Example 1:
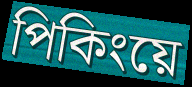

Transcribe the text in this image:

পিকিংয়ে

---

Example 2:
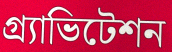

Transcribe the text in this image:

গ্র্যাভিটেশন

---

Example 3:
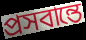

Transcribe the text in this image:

প্রসবান্তে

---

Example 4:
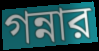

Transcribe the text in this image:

গন্নার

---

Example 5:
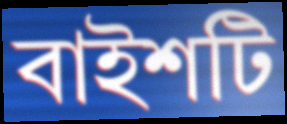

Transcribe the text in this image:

বাইশটি